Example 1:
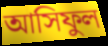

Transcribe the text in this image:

আসিফুল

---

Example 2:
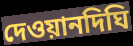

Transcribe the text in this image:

দেওয়ানদিঘি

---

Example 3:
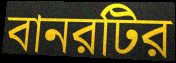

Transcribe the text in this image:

বানরটির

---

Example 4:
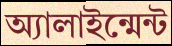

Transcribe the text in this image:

অ্যালাইন্মেন্ট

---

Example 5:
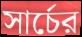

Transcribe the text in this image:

সার্চের